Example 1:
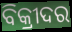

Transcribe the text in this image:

ବିକ୍ରୀଦର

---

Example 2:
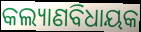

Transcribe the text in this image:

କଲ୍ୟାଣବିଧାୟକ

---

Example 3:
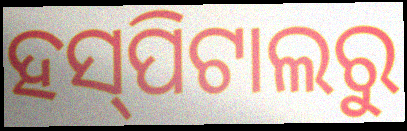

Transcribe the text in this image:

ହସ୍‌ପିଟାଲରୁ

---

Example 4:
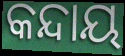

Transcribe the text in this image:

କନ୍ଦାୟ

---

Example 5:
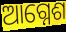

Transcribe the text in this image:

ଆଗ୍ନେଶ